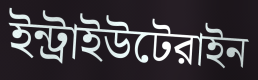
ইন্ট্রাইউটেরাইন